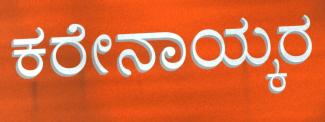
ಕರೇನಾಯ್ಕರ